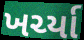
ખર્ચ્યા